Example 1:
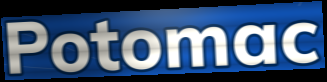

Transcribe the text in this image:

Potomac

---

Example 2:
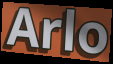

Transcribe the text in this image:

Arlo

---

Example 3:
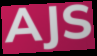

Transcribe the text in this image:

AJS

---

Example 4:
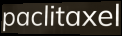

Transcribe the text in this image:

paclitaxel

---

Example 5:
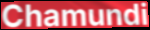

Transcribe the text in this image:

Chamundi